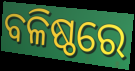
ବଳିଷ୍ଠରେ